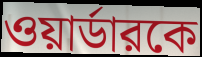
ওয়ার্ডারকে